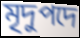
মৃদুপদে